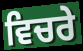
ਵਿਚਰੇ